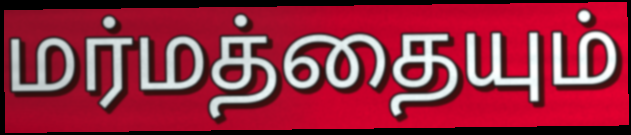
மர்மத்தையும்